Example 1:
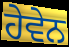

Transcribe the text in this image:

ਹੇਵੇਨ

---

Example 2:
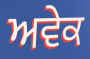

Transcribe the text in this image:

ਅਵੇਕ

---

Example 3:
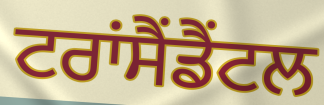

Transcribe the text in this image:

ਟਰਾਂਸੈਂਡੈਂਟਲ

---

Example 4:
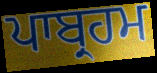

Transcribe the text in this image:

ਪਾਬ੍ਰਹਮ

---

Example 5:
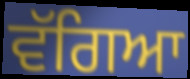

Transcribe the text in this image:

ਵੱਗਿਆ